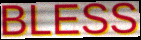
BLESS